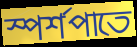
স্পর্শপাতে